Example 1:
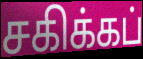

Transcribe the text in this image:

சகிக்கப்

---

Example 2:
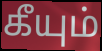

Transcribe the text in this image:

கீயும்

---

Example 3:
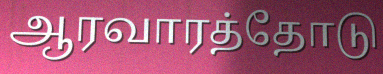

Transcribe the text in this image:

ஆரவாரத்தோடு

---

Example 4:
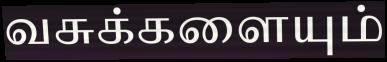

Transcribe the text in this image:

வசுக்களையும்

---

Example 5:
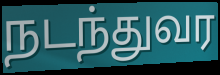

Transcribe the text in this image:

நடந்துவர